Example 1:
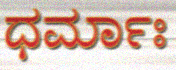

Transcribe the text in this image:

ಧರ್ಮಾಃ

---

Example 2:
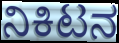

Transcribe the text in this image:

ನಿಕಿಟನ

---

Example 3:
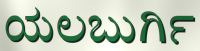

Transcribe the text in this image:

ಯಲಬುರ್ಗಿ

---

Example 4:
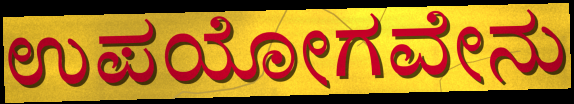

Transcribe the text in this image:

ಉಪಯೋಗವೇನು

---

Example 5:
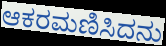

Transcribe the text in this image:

ಆಕರಮಣಿಸಿದನು